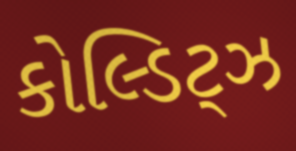
કોલ્ડિટ્ઝ